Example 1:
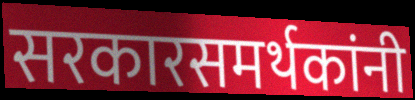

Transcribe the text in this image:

सरकारसमर्थकांनी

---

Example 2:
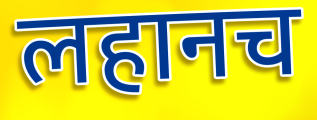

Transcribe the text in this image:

लहानच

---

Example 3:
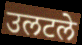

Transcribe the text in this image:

उलटले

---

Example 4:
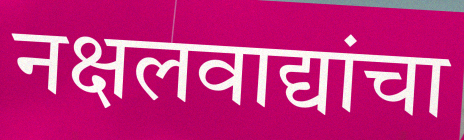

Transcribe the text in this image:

नक्षलवाद्यांचा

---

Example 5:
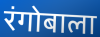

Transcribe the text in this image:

रंगोबाला